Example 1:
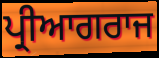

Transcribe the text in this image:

ਪ੍ਰੀਆਗਰਾਜ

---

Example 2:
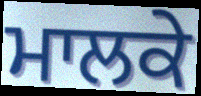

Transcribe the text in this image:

ਮਾਲਕੇ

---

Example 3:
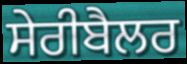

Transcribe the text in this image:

ਸੇਰੀਬੈਲਰ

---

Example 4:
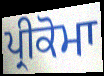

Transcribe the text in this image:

ਪ੍ਰੀਕੋਮਾ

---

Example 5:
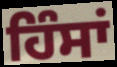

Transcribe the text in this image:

ਹਿੰਸਾਂ